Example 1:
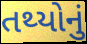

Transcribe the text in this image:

તથ્યોનું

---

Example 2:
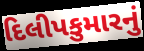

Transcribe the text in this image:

દિલીપકુમારનું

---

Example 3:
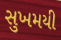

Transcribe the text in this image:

સુખમયી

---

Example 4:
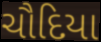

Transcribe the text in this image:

ચૌદિયા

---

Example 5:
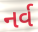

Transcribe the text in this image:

નર્વ